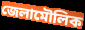
জেলামৌলিক